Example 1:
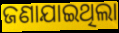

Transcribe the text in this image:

ଜଣାଯାଇଥିଲା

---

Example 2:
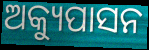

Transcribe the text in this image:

ଅକ୍ୟୁପାସନ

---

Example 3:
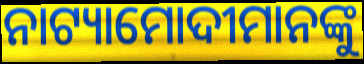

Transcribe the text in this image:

ନାଟ୍ୟାମୋଦୀମାନଙ୍କୁ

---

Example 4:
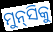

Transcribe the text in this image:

ମୁନ୍‌ସିକୁ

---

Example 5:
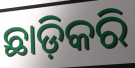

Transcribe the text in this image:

ଛାଡ଼ିକରି